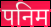
पनिम